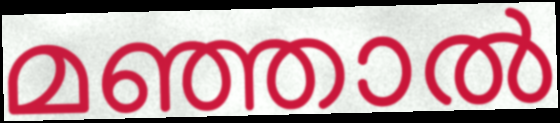
മഞ്ഞാൽ